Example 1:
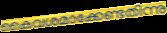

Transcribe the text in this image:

കൈവശമാക്കേണ്ടതിന്നു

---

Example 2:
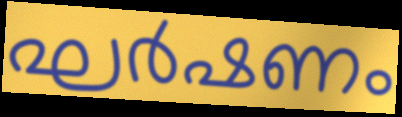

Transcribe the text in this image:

ഘർഷണം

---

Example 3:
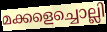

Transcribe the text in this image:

മക്കളെച്ചൊല്ലി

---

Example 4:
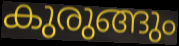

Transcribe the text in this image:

കുരുങ്ങും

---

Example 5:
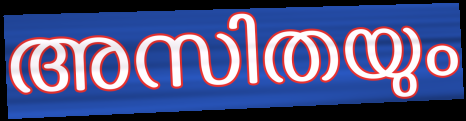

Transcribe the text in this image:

അസിതയും